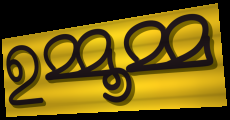
ഉമ്മൂമ്മ